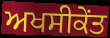
ਅਖਸੀਕੇਂਤ